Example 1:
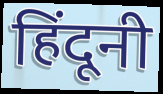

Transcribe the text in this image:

हिंदूनी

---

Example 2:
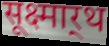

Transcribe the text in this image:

सूक्ष्मार्थ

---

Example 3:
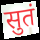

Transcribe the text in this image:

सुतं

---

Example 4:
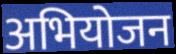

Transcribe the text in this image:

अभियोजन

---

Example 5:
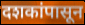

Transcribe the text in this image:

दशकांपासून